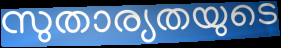
സുതാര്യതയുടെ